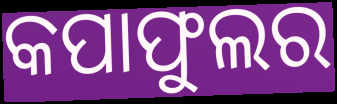
କପାଫୁଲର